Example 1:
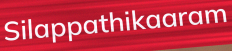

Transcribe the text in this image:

Silappathikaaram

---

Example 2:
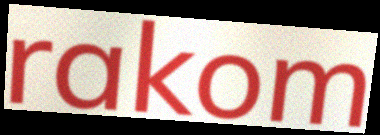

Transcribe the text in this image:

rakom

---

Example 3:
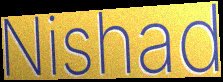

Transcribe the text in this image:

Nishad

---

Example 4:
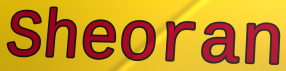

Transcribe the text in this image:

Sheoran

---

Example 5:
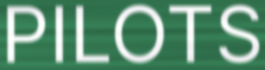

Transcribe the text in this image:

PILOTS